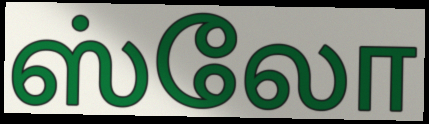
ஸ்லோ